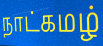
நாட்கமழ்